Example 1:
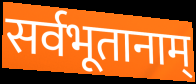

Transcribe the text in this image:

सर्वभूतानाम्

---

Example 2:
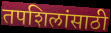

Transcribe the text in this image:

तपशिलांसाठी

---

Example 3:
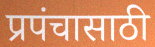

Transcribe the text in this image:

प्रपंचासाठी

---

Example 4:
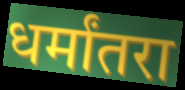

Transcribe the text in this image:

धर्मांतरा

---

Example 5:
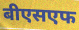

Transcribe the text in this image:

बीएसएफ